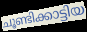
ചൂണ്ടിക്കാട്ടിയ